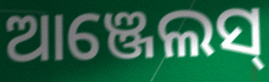
ଆଞ୍ଜେଲସ୍